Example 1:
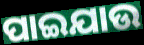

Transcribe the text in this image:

ପାଇଯାଉ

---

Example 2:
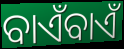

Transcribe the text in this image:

ବାଏଁବାଏଁ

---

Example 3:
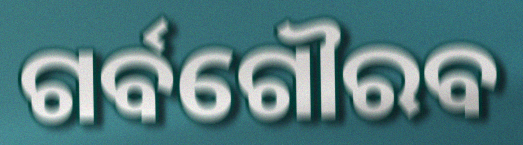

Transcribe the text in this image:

ଗର୍ବଗୌରବ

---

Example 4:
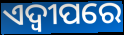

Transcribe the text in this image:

ଏଦ୍ୱୀପରେ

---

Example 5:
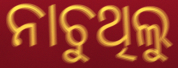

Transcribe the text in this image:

ନାଚୁଥିଲୁ